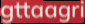
gttaagri